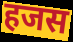
हजस